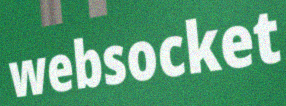
websocket